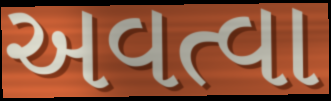
અવત્વા